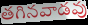
తగినవాడవు